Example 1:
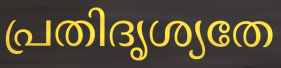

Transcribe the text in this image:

പ്രതിദൃശ്യതേ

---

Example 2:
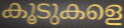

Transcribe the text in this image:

കൂടുകളെ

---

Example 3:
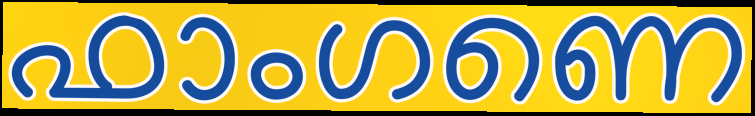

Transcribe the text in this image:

ഫാംഗണെ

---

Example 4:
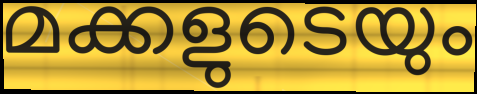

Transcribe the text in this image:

മക്കളുടെയും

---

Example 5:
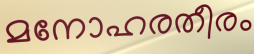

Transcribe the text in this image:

മനോഹരതീരം